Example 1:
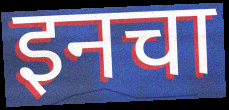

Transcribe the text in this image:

इनचा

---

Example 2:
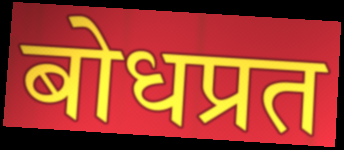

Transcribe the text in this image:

बोधप्रत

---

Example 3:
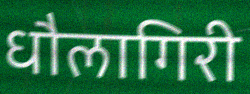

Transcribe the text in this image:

धौलागिरी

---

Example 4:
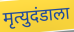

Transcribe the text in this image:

मृत्युदंडाला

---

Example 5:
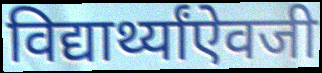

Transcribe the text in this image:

विद्यार्थ्यांऐवजी